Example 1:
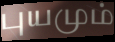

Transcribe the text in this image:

புயமும்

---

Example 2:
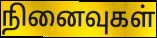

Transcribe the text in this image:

நினைவுகள்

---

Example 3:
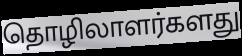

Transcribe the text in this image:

தொழிலாளர்களது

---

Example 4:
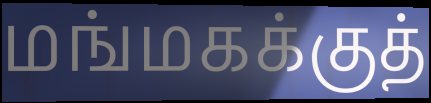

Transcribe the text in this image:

மங்மகக்குத்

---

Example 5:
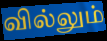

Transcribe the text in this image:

வில்லும்